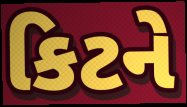
કિટને